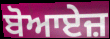
ਬੋਆਏਜ਼